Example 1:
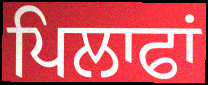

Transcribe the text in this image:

ਪਿਲਾਫਾਂ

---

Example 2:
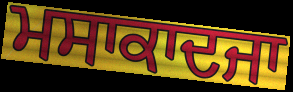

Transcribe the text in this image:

ਮਸਾਕਾਦਜਾ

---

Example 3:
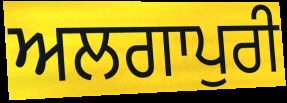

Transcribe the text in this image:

ਅਲਗਾਪੁਰੀ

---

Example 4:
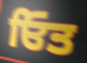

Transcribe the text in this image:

ਓਿਤ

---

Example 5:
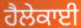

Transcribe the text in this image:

ਹੈਲੇਕਾਈ